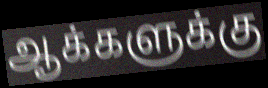
ஆக்களுக்கு